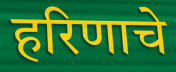
हरिणाचे